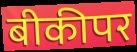
बीकीपर